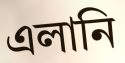
এলানি